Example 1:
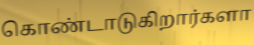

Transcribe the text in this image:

கொண்டாடுகிறார்களா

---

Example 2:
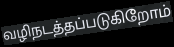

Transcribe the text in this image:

வழிநடத்தப்படுகிறோம்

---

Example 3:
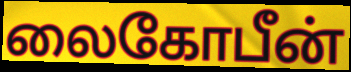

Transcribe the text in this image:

லைகோபீன்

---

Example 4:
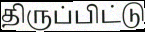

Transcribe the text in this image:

திருப்பிட்டு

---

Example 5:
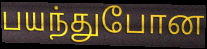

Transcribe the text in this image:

பயந்துபோன